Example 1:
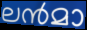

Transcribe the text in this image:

ലൻമാ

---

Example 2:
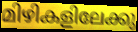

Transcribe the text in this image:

മിഴികളിലേക്കു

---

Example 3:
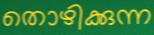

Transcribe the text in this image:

തൊഴിക്കുന്ന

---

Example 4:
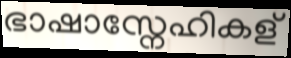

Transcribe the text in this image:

ഭാഷാസ്നേഹികള്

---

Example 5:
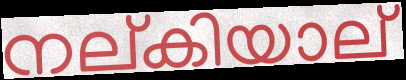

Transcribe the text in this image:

നല്കിയാല്